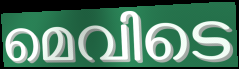
മെവിടെ